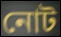
নোট